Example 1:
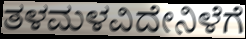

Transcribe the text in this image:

ತಳಮಳವಿದೇನಿಳೆಗೆ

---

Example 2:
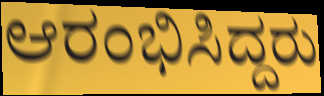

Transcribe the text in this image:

ಆರಂಭಿಸಿದ್ದರು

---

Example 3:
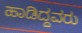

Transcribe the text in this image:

ಹಾಡಿದ್ದವರು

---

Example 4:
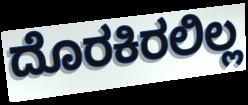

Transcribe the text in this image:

ದೊರಕಿರಲಿಲ್ಲ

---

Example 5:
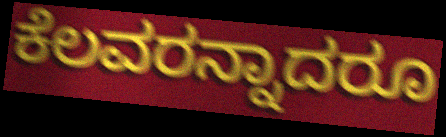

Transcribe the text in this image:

ಕೆಲವರನ್ನಾದರೂ